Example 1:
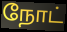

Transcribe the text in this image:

நோட்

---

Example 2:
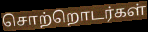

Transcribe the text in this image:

சொற்றொடர்கள்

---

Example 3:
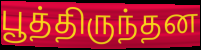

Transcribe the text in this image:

பூத்திருந்தன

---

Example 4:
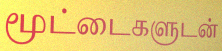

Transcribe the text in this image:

மூட்டைகளுடன்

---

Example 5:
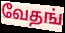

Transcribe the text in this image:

வேதங்